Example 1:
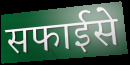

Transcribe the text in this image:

सफाईसे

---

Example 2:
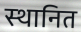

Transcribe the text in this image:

स्थानित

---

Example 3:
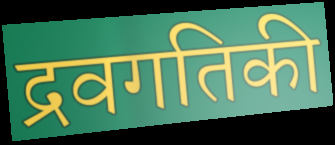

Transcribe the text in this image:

द्रवगतिकी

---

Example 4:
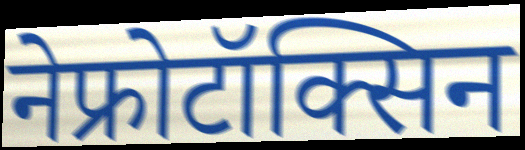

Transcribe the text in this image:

नेफ्रोटॉक्सिन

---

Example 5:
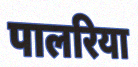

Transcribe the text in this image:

पालरिया